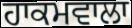
ਹਾਕਮਵਾਲਾ